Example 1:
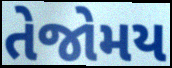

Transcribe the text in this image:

તેજોમય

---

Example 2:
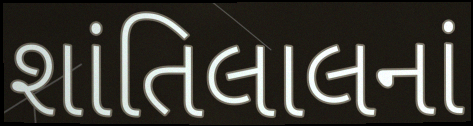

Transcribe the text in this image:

શાંતિલાલનાં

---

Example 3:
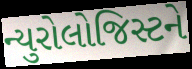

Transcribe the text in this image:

ન્યુરોલોજિસ્ટને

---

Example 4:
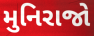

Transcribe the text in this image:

મુનિરાજો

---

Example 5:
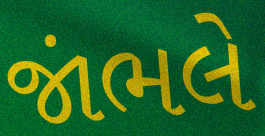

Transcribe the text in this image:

જાંભલે